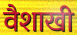
वैशाखी